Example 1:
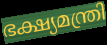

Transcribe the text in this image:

ഭക്ഷ്യമന്ത്രി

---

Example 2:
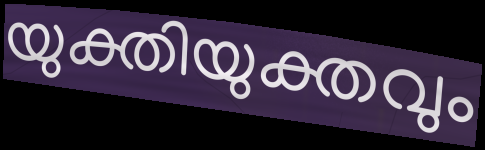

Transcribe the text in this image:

യുക്തിയുക്തവും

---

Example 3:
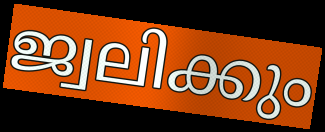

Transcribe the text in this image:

ജ്വലിക്കും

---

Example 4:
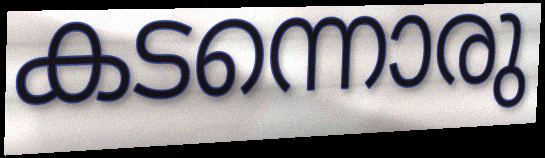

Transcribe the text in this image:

കടന്നൊരു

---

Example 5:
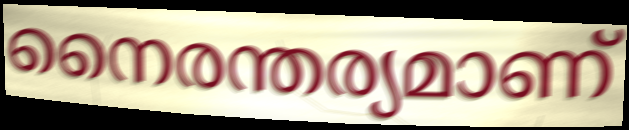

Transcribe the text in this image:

നൈരന്തര്യമാണ്